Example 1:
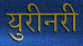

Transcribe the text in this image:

युरीनरी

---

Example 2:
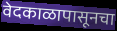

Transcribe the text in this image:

वेदकाळापासूनचा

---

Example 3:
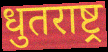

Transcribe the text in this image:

धुतराष्ट्र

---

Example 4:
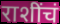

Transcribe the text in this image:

राशींचं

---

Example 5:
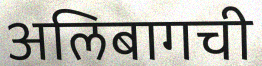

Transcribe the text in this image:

अलिबागची